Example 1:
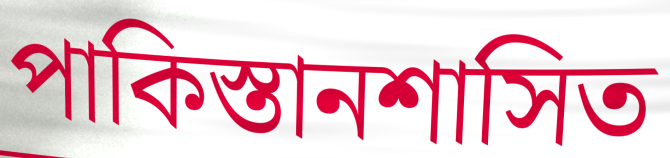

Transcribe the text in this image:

পাকিস্তানশাসিত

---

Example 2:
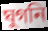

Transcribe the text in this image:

ঘুগনি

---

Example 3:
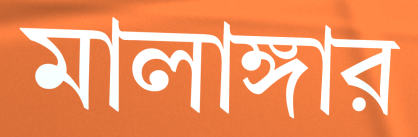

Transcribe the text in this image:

মালাঙ্গার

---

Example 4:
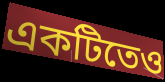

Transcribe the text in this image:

একটিতেও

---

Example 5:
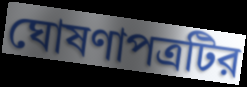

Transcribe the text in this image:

ঘোষণাপত্রটির